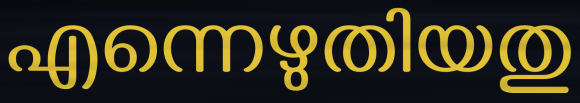
എന്നെഴുതിയതു